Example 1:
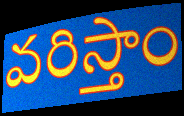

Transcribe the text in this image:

వరిస్తాం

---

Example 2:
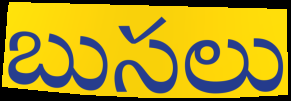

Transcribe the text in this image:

బుసలు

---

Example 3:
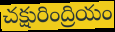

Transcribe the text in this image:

చక్షురింద్రియం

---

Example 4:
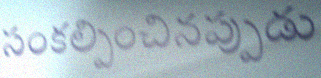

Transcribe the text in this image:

సంకల్పించినప్పుడు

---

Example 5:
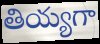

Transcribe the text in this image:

తియ్యగా